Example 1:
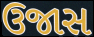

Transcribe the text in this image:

ઉજાસ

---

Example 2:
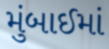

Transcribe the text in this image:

મુંબાઈમાં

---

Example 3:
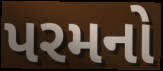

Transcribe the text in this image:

પરમનો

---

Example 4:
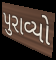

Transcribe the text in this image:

પુરાવ્યો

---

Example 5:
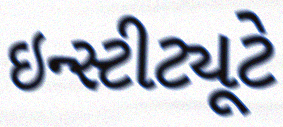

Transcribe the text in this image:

ઇન્સ્ટીટ્યૂટે